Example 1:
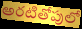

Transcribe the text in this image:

అరటితోపులో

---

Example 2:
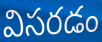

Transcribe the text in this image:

విసరడం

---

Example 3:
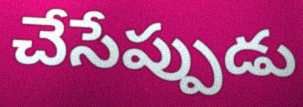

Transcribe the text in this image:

చేసేప్పుడు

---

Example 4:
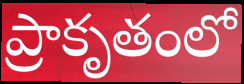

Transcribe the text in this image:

ప్రాకృతంలో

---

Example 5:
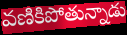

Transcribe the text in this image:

వణికిపోతున్నాడు